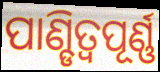
ପାଣ୍ଡିତ୍ୱପୂର୍ଣ୍ଣ